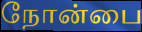
நோன்பை